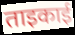
ताइकाई